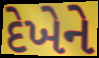
દેખેને